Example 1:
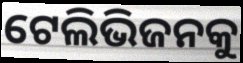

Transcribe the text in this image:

ଟେଲିଭିଜନକୁ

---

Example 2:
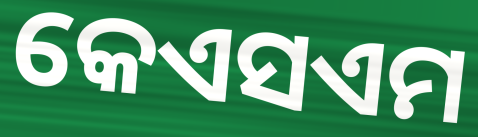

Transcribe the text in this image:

କେଏସଏମ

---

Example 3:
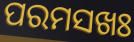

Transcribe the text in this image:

ପରମସଖଃ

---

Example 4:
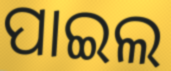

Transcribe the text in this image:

ପାଇଲ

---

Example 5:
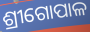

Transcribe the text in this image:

ଶ୍ରୀଗୋପାଳ